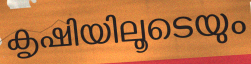
കൃഷിയിലൂടെയും